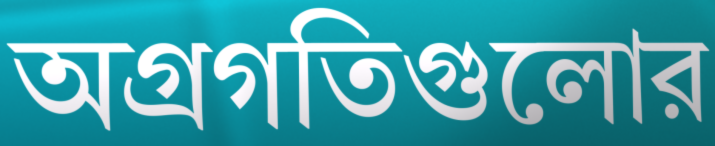
অগ্রগতিগুলোর